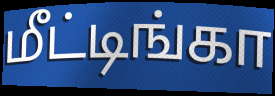
மீட்டிங்கா